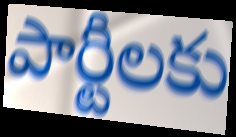
పార్టీలకు